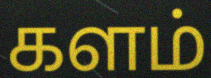
களம்